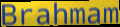
Brahmam